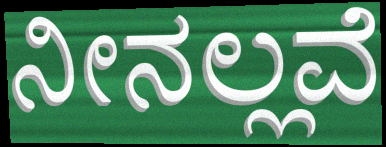
ನೀನಲ್ಲವೆ